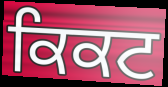
ਕਿਕਟ